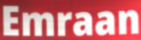
Emraan